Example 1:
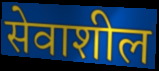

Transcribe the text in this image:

सेवाशील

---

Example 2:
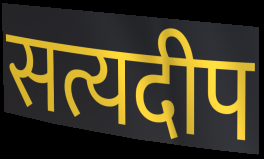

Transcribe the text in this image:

सत्यदीप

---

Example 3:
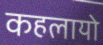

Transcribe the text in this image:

कहलायो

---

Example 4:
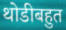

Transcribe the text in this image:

थोडीबहुत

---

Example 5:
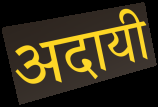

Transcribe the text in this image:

अदायी